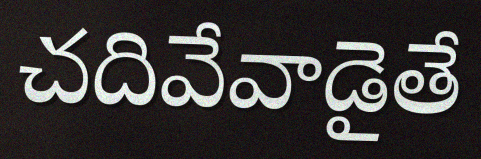
చదివేవాడైతే